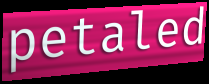
petaled